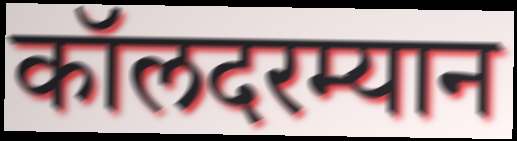
कॉलदरम्यान